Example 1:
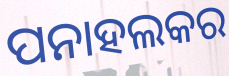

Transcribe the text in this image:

ପନାହଲକର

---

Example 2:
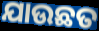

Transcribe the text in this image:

ଯାଉଛତ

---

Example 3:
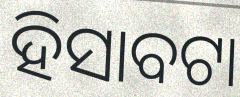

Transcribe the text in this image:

ହିସାବଟା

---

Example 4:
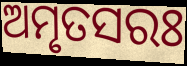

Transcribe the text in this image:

ଅମୃତସରଃ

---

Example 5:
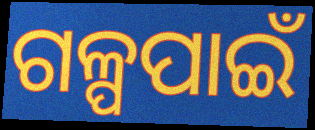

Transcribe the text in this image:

ଗଳ୍ପପାଇଁ